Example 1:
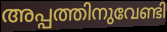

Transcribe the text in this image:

അപ്പത്തിനുവേണ്ടി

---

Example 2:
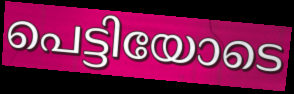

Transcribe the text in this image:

പെട്ടിയോടെ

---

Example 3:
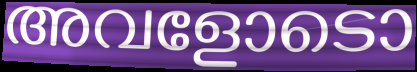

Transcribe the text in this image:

അവളോടൊ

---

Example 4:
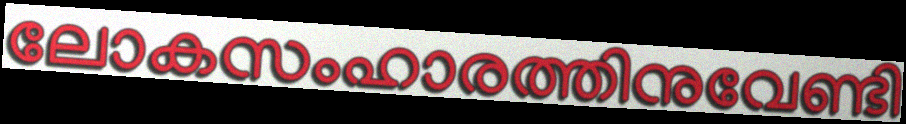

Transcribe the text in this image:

ലോകസംഹാരത്തിനുവേണ്ടി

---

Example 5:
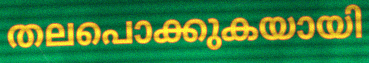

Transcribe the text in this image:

തലപൊക്കുകയായി